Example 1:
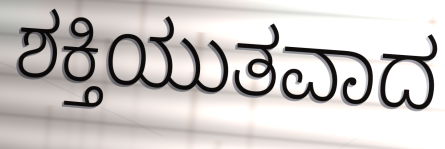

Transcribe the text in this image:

ಶಕ್ತಿಯುತವಾದ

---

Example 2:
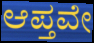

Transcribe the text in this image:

ಆಪ್ತವೇ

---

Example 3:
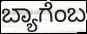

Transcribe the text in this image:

ಬ್ಯಾಗೆಂಬ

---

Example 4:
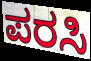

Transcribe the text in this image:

ಪರಸಿ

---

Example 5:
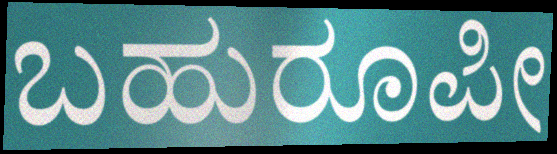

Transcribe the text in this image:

ಬಹುರೂಪೀ